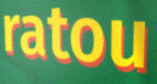
ratou